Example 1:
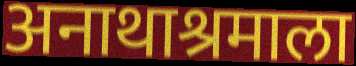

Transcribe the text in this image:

अनाथाश्रमाला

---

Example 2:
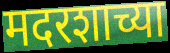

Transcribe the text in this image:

मदरशाच्या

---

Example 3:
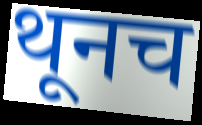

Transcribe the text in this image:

थूनच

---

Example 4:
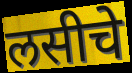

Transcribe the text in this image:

लसीचे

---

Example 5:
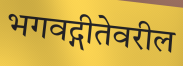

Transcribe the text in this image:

भगवद्गीतेवरील